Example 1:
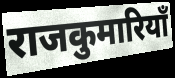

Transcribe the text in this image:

राजकुमारियाँ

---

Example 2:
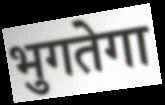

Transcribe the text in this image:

भुगतेगा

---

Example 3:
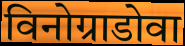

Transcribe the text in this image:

विनोग्राडोवा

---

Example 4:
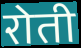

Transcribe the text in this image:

रोती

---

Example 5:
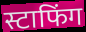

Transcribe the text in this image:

स्टाफिंग